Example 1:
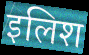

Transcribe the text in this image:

इलिश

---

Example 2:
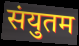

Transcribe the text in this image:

संयुतम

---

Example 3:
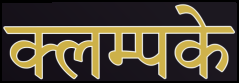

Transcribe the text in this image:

क्लम्पके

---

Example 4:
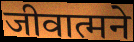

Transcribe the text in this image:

जीवात्मने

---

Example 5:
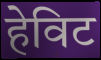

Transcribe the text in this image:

हेविट